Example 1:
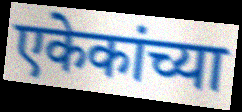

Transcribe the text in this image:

एकेकांच्या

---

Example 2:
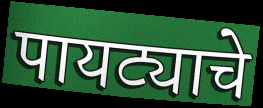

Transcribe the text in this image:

पायट्याचे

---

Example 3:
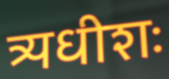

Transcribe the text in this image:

त्र्यधीशः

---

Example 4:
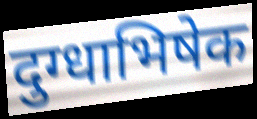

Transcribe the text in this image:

दुग्धाभिषेक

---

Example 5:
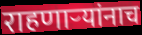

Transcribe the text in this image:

राहणाऱ्यांनाच